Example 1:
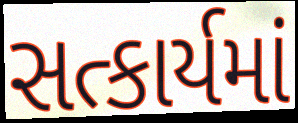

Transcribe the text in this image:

સત્કાર્યમાં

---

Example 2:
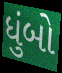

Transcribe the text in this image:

ધુંબો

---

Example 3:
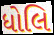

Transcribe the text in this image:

ધોલિ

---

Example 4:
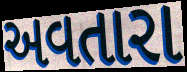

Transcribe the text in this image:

અવતારા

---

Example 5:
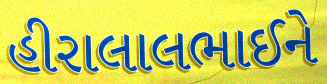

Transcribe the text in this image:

હીરાલાલભાઈને